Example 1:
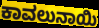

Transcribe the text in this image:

ಕಾವಲುನಾಯಿ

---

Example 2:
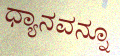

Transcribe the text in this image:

ಧ್ಯಾನವನ್ನೂ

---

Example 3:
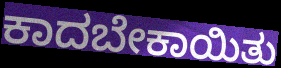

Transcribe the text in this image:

ಕಾದಬೇಕಾಯಿತು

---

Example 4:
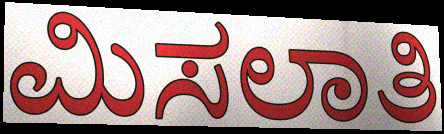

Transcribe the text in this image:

ಮಿಸಲಾತಿ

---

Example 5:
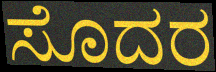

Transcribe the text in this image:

ಸೊದರ